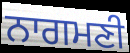
ਨਾਗਮਣੀ